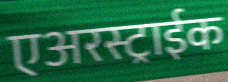
एअरस्ट्राईक